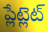
ప్లేట్లెట్